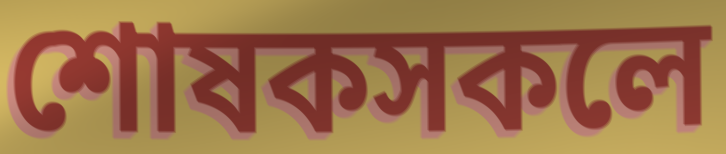
শোষকসকলে